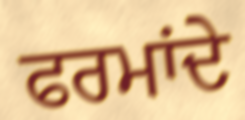
ਫਰਮਾਂਦੇ